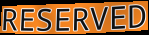
RESERVED